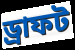
ড্রাফট